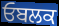
ਓਬਲਕ